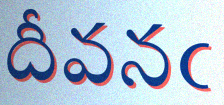
దీవనఁ